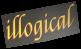
illogical